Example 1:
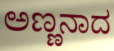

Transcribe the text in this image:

ಅಣ್ಣನಾದ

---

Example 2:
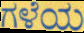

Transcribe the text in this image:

ಗಳೆಯ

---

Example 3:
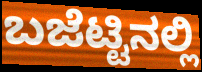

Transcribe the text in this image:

ಬಜೆಟ್ಟಿನಲ್ಲಿ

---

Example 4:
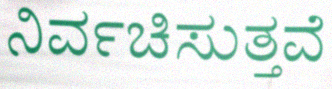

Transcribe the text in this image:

ನಿರ್ವಚಿಸುತ್ತವೆ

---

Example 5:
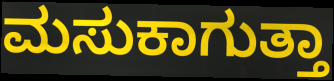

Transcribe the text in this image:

ಮಸುಕಾಗುತ್ತಾ